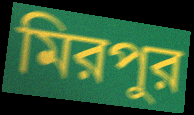
মিরপুর